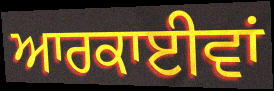
ਆਰਕਾਈਵਾਂ